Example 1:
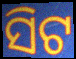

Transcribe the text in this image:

ସିଟ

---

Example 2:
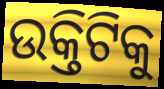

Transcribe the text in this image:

ଉକ୍ତିଟିକୁ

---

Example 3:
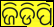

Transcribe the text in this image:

ଜିଡିପି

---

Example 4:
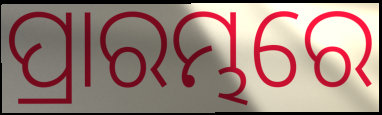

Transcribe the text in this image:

ପ୍ରାରମ୍ଭରେ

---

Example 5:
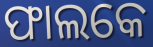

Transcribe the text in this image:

ଫାଲକେ